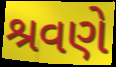
શ્રવણે